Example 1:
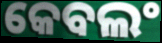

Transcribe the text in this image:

କେବଲଂ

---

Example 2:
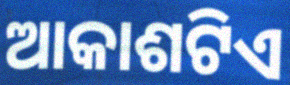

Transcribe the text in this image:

ଆକାଶଟିଏ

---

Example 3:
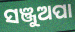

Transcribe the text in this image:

ସଞ୍ଜୁଅପା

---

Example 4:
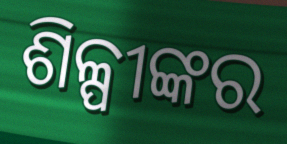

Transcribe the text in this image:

ଶିଳ୍ପୀଙ୍କର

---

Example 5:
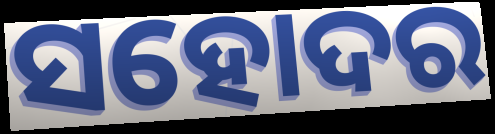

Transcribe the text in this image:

ସହୋଦର